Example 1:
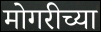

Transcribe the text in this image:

मोगरीच्या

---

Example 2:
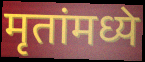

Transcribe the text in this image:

मृतांमध्ये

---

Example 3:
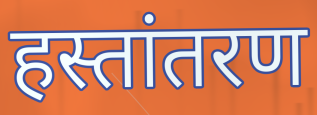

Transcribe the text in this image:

हस्तांतरण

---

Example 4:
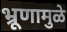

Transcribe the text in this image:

भ्रूणामुळे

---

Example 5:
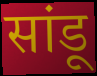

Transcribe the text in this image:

सांडू